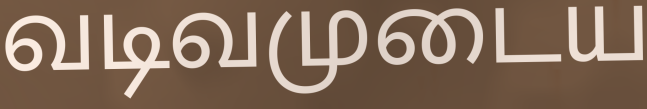
வடிவமுடைய